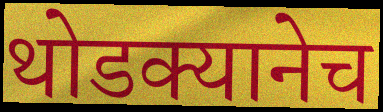
थोडक्यानेच